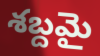
శబ్దమై